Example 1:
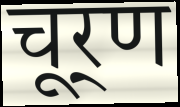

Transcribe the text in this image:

चूर्ण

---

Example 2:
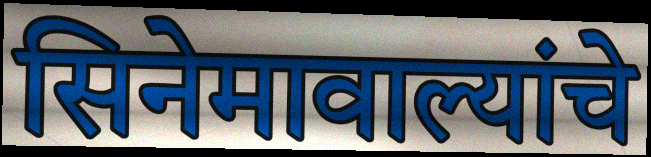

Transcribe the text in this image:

सिनेमावाल्यांचे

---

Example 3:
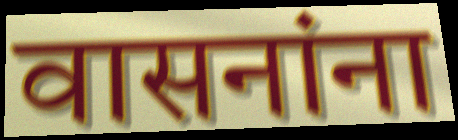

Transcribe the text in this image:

वासनांना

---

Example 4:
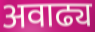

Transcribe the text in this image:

अवाढ्य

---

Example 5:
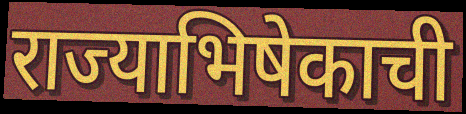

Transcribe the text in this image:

राज्याभिषेकाची